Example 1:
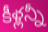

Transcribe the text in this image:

కీళ్లన్నీ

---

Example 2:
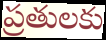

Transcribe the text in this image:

ప్రతులకు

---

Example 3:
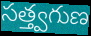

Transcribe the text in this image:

సత్త్వగుణ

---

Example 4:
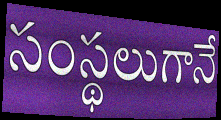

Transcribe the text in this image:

సంస్థలుగానే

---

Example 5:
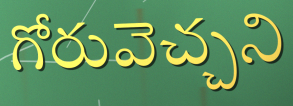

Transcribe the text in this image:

గోరువెచ్చని